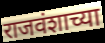
राजवंशाच्या